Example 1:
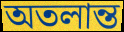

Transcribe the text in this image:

অতলান্ত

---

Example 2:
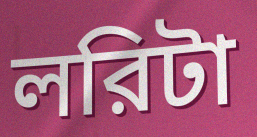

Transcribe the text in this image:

লরিটা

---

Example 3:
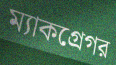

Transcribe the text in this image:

ম্যাকগ্রেগর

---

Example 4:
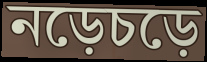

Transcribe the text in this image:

নড়েচড়ে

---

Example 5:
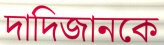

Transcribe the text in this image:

দাদিজানকে